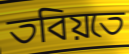
তবিয়তে